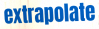
extrapolate